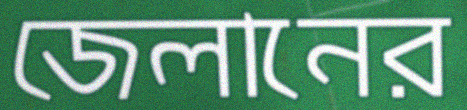
জেলানের